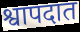
श्वापदात